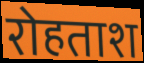
रोहताश